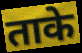
ताके